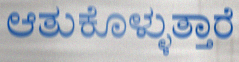
ಆತುಕೊಳ್ಳುತ್ತಾರೆ